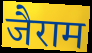
जैराम